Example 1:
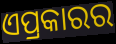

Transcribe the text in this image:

ଏପ୍ରକାରର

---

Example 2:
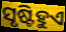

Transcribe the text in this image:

ସୃଷ୍ଟିହୁଏ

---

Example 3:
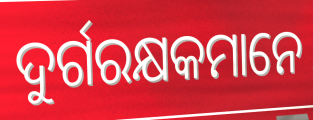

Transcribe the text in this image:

ଦୁର୍ଗରକ୍ଷକମାନେ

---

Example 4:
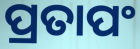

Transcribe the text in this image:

ପ୍ରତାପଂ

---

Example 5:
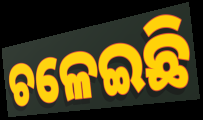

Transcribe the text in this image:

ଚଳେଇଛି